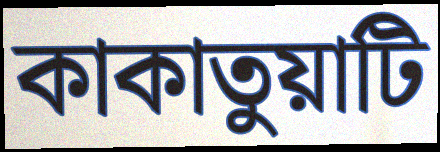
কাকাতুয়াটি